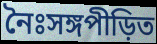
নৈঃসঙ্গপীড়িত